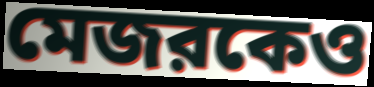
মেজরকেও